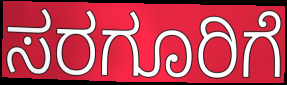
ಸರಗೂರಿಗೆ